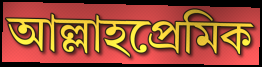
আল্লাহপ্রেমিক